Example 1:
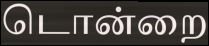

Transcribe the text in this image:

டொன்றை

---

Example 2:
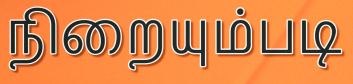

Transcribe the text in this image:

நிறையும்படி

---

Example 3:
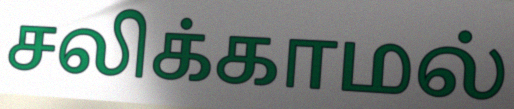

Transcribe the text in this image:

சலிக்காமல்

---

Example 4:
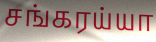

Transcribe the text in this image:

சங்கரய்யா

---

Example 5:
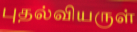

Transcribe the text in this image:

புதல்வியருள்